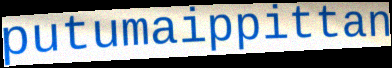
putumaippittan